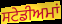
ਸਟੇਡੀਅਮਾਂ